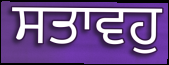
ਸਤਾਵਹੁ